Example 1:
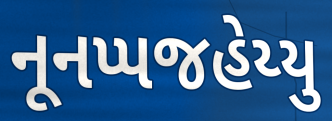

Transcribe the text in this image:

નૂનપ્પજહેય્યુ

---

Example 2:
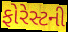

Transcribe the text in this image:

ફોરેસ્ટની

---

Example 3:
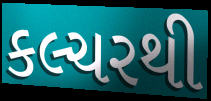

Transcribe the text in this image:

કલ્ચરથી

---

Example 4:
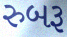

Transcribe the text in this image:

રુબરૂ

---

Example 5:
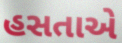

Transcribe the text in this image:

હસતાએ